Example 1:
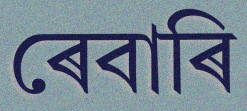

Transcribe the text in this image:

ৰেবাৰি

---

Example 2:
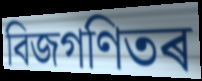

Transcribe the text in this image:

বিজগণিতৰ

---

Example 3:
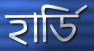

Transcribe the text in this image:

হাৰ্ডি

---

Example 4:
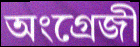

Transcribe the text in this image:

অংগ্ৰেজী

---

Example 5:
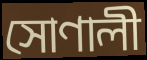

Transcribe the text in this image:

সোণালী